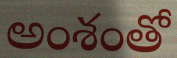
అంశంతో